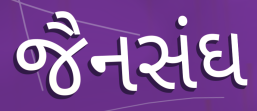
જૈનસંઘ